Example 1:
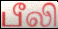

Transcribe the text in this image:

பீலி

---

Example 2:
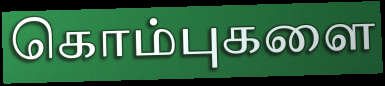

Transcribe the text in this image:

கொம்புகளை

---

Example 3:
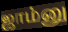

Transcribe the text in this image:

ஜாம்னு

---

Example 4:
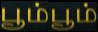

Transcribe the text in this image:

பூம்பூம்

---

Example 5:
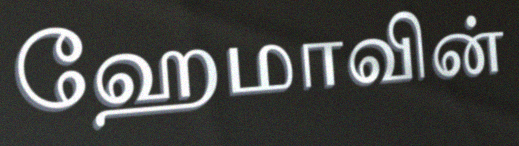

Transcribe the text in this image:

ஹேமாவின்